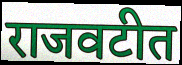
राजवटीत